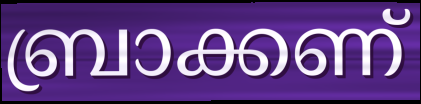
ബ്രാക്കണ്